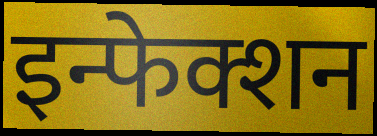
इन्‍फेक्‍शन